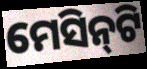
ମେସିନ୍‌ଟି